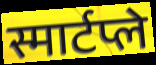
स्मार्टप्ले